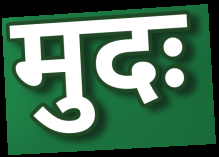
मुदः